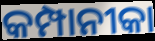
କମ୍ପାନୀକା